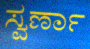
ಸ್ವರ್ಣಾ